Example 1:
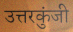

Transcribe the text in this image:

उत्तरकुंजी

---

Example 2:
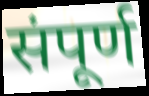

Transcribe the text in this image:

संपूर्ण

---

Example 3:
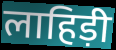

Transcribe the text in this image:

लाहिड़ी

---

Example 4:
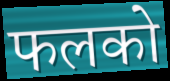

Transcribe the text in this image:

फलको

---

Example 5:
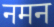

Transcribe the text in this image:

नमन